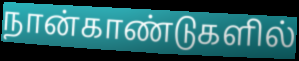
நான்காண்டுகளில்